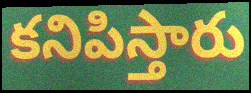
కనిపిస్తారు